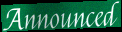
Announced